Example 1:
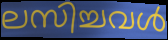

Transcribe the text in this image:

ലസിച്ചവൾ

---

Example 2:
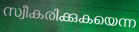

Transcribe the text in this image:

സ്വീകരിക്കുകയെന്ന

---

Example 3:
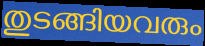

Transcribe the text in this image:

തുടങ്ങിയവരും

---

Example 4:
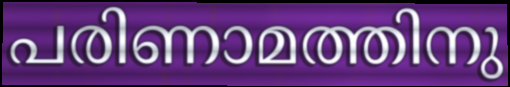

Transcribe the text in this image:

പരിണാമത്തിനു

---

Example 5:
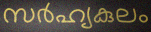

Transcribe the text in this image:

സർഹ്യകുലം